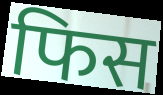
फिस